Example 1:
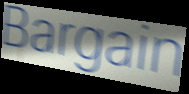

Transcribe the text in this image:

Bargain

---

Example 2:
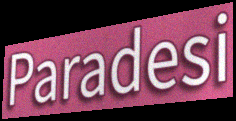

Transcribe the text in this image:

Paradesi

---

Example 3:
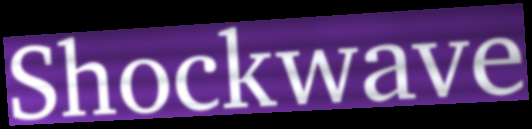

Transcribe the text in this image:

Shockwave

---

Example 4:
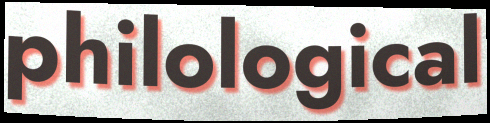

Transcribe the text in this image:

philological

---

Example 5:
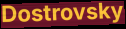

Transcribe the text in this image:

Dostrovsky